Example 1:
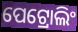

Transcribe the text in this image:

ପେଟ୍ରୋଲିଂ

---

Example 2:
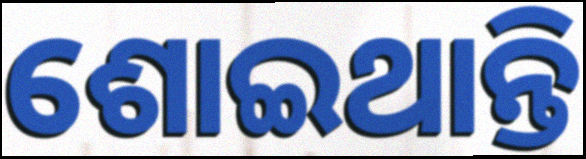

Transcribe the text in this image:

ଶୋଇଥାନ୍ତି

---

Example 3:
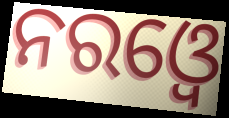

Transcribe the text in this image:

ନରଓ୍ୱେ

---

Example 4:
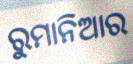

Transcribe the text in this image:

ରୁମାନିଆର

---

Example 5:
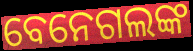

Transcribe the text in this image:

ବେନେଗଲଙ୍କ